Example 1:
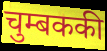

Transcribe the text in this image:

चुम्बककी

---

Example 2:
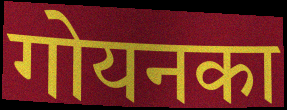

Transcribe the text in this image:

गोयनका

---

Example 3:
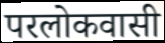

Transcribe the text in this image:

परलोकवासी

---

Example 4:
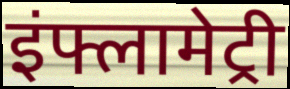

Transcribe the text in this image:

इंफ्लामेट्री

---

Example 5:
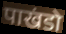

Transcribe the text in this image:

पाखंडो